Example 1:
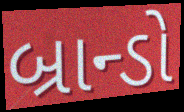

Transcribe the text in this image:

બ્રાન્ડો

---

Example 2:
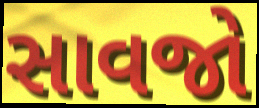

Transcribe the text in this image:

સાવજો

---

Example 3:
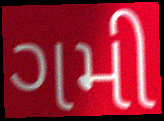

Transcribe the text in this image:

ગમી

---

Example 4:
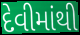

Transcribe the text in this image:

દેવીમાંથી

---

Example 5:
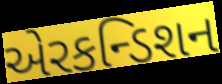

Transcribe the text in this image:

એરકન્ડિશન